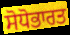
ਸੋਧੋਭਾਰਤ